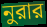
নুরার